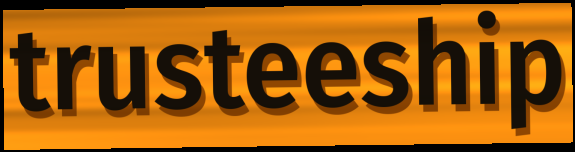
trusteeship